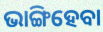
ଭାଙ୍ଗିହେବା